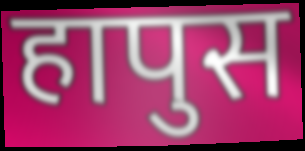
हापुस